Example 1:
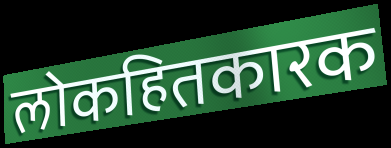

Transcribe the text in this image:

लोकहितकारक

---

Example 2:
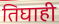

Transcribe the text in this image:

तिघाही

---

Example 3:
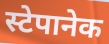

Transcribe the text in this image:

स्टेपानेक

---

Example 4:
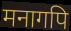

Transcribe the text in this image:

मनागपि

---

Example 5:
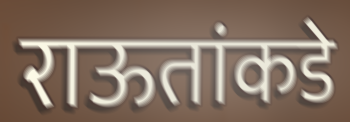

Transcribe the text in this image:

राऊतांकडे